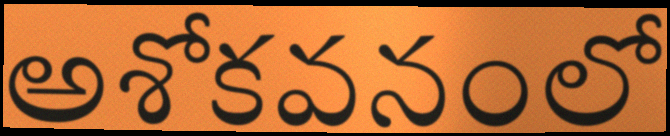
అశోకవనంలో